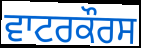
ਵਾਟਰਕੌਰਸ